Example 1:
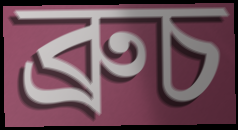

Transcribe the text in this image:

ব্ৰুচ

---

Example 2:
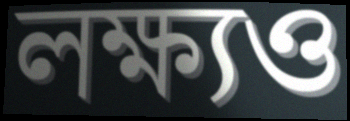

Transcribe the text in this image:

লক্ষ্যও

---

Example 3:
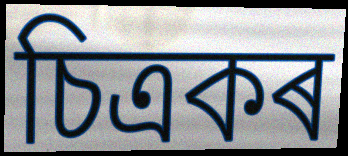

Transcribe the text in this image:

চিত্ৰকৰ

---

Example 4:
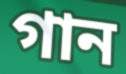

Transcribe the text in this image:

গান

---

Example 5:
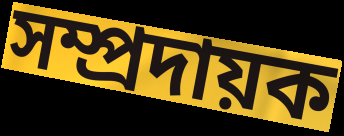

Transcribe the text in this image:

সম্প্ৰদায়ক